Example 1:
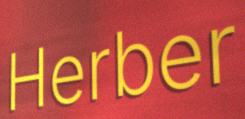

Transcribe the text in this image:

Herber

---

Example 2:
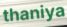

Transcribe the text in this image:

thaniya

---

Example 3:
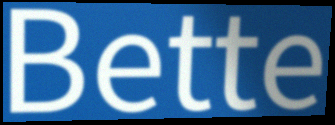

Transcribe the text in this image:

Bette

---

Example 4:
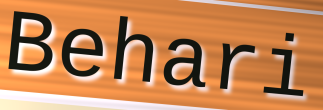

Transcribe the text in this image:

Behari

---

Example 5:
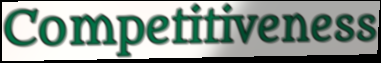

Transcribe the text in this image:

Competitiveness